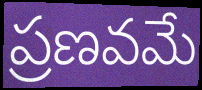
ప్రణవమే